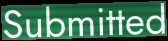
Submitted